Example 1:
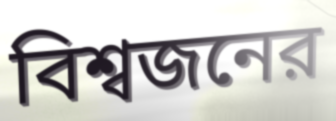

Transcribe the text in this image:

বিশ্বজনের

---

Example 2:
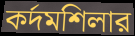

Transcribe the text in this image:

কর্দমশিলার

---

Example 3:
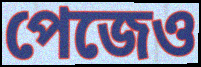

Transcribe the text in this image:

পেজেও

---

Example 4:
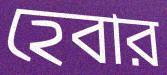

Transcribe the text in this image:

হেবার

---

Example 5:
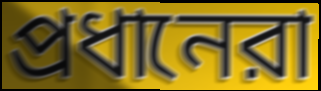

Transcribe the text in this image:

প্রধানেরা